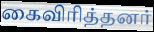
கைவிரித்தனர்